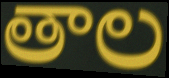
తాల